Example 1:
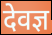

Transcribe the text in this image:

देवज्ञ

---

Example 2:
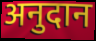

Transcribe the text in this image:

अनुदान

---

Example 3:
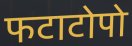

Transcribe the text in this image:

फटाटोपो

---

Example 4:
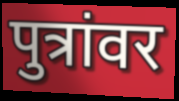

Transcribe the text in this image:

पुत्रांवर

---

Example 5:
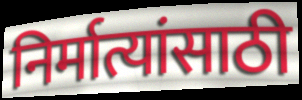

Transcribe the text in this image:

निर्मात्यांसाठी